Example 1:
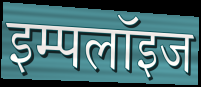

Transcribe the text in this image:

इम्पलॉइज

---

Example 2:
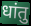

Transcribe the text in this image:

धांतु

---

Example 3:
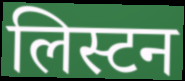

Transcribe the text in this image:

लिस्टन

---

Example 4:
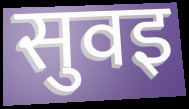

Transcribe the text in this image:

सुवइ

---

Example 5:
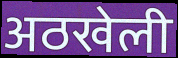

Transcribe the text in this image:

अठखेली